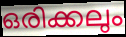
ഒരിക്കലും